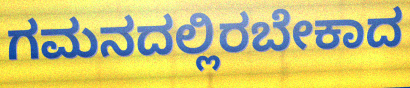
ಗಮನದಲ್ಲಿರಬೇಕಾದ